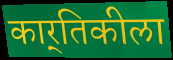
कार्तिकीला